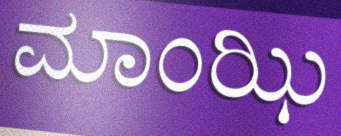
ಮಾಂಝಿ